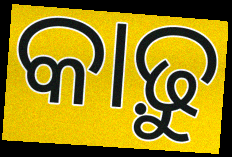
କାଢ଼ୁ